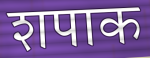
शपाक